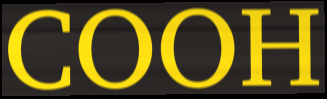
COOH